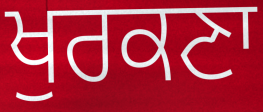
ਖੁਰਕਣਾ